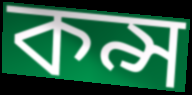
কন্স